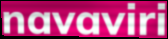
navaviri